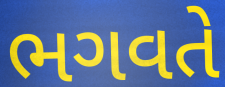
ભગવતે